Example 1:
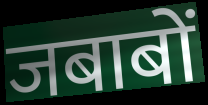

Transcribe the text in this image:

जबाबों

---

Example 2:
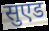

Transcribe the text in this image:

सुएड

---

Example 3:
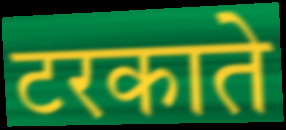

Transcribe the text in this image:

टरकाते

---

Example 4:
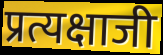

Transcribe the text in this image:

प्रत्यक्षाजी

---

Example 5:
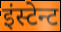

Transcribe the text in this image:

इंस्टेन्ट